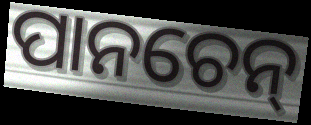
ପାନଚେନ୍